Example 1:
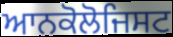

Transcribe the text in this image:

ਆਨਕੋਲੋਜਿਸਟ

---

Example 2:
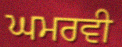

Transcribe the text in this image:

ਘਮਰਵੀ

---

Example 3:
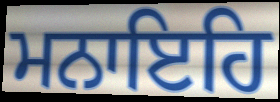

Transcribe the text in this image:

ਮਨਾਇਹਿ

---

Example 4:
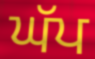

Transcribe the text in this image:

ਘੱਪ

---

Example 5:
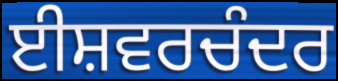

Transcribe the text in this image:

ਈਸ਼ਵਰਚੰਦਰ